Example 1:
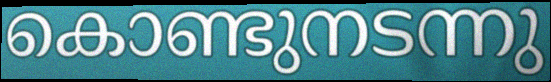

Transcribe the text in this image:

കൊണ്ടുനടന്നു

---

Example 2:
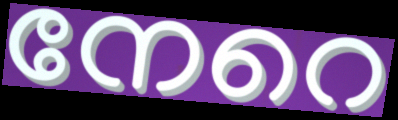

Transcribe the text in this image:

നേറെ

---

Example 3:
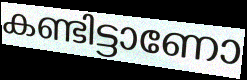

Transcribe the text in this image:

കണ്ടിട്ടാണോ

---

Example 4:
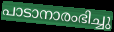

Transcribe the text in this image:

പാടാനാരംഭിച്ചു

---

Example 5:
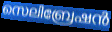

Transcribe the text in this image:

സെലിബ്രേഷൻ